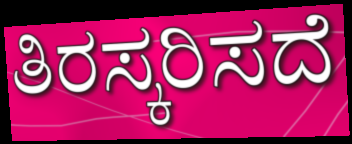
ತಿರಸ್ಕರಿಸದೆ